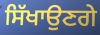
ਸਿੱਖਾਉਣਗੇ